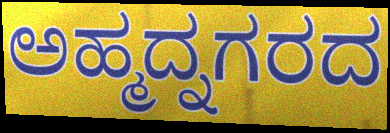
ಅಹ್ಮದ್ನಗರದ